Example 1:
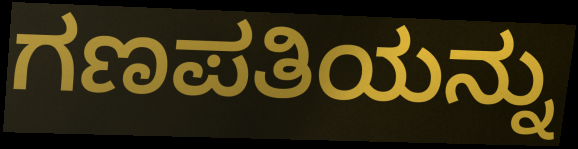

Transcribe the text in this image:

ಗಣಪತಿಯನ್ನು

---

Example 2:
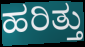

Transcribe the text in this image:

ಹರಿತ್ತು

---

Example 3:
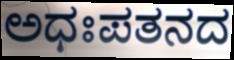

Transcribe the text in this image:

ಅಧಃಪತನದ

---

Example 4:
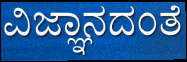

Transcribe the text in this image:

ವಿಜ್ಞಾನದಂತೆ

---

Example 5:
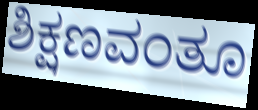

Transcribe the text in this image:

ಶಿಕ್ಷಣವಂತೂ